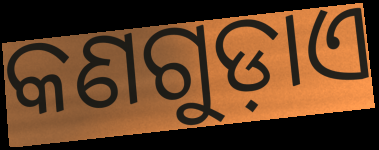
କଣଗୁଡ଼ାଏ